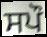
ਸਪੌ